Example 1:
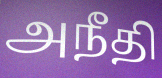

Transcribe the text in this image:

அநீதி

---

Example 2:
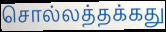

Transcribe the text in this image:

சொல்லத்தக்கது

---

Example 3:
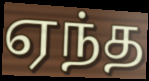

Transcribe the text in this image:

ஏந்த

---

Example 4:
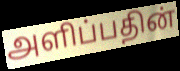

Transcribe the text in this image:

அளிப்பதின்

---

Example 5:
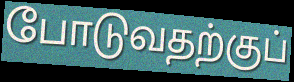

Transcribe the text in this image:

போடுவதற்குப்